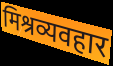
मिश्रव्यवहार